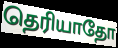
தெரியாதோ